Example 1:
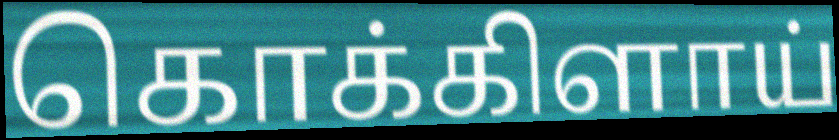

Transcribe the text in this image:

கொக்கிளாய்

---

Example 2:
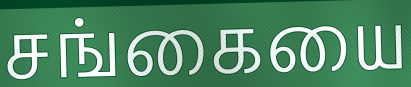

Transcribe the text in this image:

சங்கையை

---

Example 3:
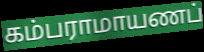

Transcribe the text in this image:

கம்பராமாயணப்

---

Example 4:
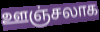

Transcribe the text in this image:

ஊஞ்சலாக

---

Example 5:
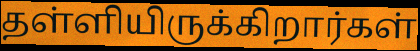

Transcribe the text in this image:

தள்ளியிருக்கிறார்கள்